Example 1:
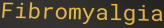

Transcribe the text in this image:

Fibromyalgia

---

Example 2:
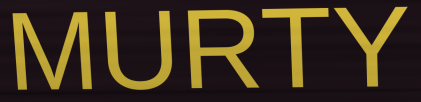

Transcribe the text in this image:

MURTY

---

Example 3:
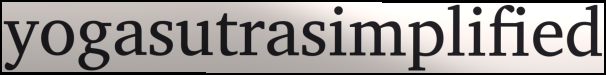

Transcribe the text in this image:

yogasutrasimplified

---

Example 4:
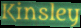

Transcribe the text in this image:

Kinsley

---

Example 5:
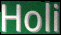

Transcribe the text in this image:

Holi